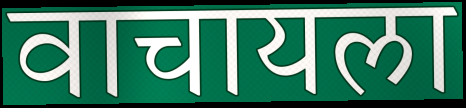
वाचायला